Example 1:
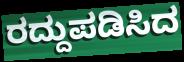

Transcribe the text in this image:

ರದ್ದುಪಡಿಸಿದ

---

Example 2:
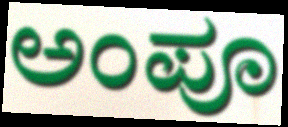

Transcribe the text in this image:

ಅಂಪೂ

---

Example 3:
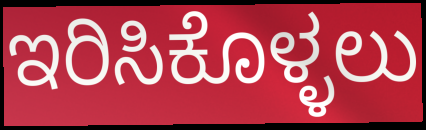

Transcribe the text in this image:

ಇರಿಸಿಕೊಳ್ಳಲು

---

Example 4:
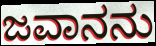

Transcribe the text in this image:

ಜವಾನನು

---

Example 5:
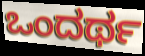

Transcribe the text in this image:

ಒಂದರ್ಥ